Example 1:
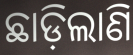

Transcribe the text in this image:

ଛାଡ଼ିଲାଣି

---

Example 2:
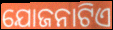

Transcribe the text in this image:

ଯୋଜନାଟିଏ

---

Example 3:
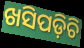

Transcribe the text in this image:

ଖସିପଡ଼ିଚି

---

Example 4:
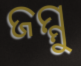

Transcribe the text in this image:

ଜମ୍ମୁ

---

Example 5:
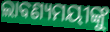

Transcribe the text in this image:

ଲାବଣ୍ୟମୟୀଙ୍କୁ